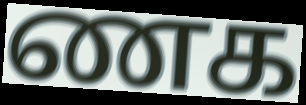
ணக